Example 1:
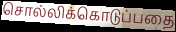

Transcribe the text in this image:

சொல்லிக்கொடுப்பதை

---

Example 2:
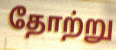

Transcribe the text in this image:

தோற்று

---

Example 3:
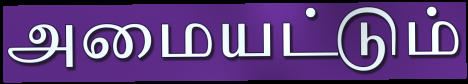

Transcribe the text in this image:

அமையட்டும்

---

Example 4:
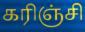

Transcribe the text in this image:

கரிஞ்சி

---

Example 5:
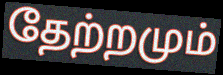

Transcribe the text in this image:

தேற்றமும்